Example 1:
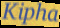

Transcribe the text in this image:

Kipha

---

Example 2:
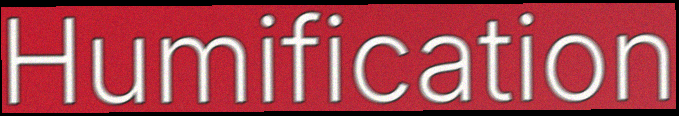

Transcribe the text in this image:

Humification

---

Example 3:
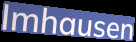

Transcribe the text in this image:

Imhausen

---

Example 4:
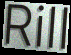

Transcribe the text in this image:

Rill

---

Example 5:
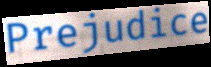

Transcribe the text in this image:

Prejudice